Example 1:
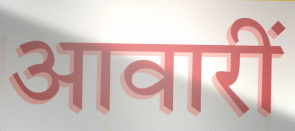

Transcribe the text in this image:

आवारीं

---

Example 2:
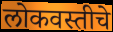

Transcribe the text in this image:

लोकवस्तीचे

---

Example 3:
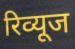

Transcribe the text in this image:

रिव्यूज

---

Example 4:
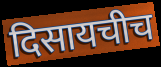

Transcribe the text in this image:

दिसायचीच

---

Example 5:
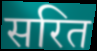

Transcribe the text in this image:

सरित